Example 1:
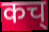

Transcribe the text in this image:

कच्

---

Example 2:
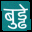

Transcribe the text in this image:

बुड्ढे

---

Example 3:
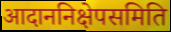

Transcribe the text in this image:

आदाननिक्षेपसमिति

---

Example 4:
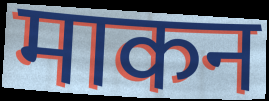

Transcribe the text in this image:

माकन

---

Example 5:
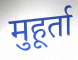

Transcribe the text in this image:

मुहूर्ता